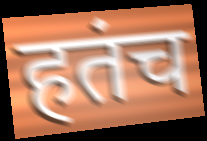
हतंच